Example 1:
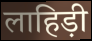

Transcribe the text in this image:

लाहिड़ी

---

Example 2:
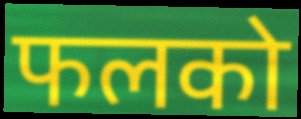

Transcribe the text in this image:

फलको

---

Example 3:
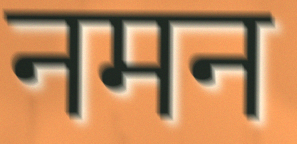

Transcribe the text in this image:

नमन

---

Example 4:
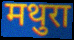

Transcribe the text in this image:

मथुरा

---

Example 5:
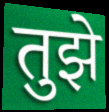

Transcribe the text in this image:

तुझे